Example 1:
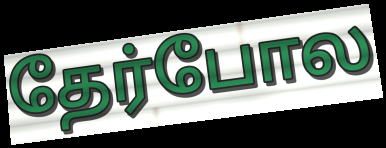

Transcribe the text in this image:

தேர்போல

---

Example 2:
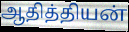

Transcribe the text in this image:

ஆதித்தியன்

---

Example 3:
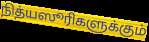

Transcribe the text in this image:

நித்யஸூரிகளுக்கும்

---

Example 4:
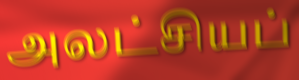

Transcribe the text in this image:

அலட்சியப்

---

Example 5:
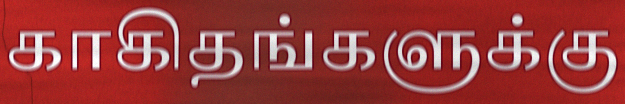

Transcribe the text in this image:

காகிதங்களுக்கு